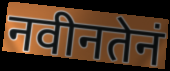
नवीनतेनं